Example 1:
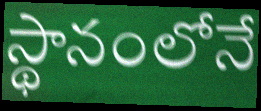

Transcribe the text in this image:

స్థానంలోనే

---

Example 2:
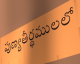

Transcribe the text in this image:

పుణ్యతీర్థములలో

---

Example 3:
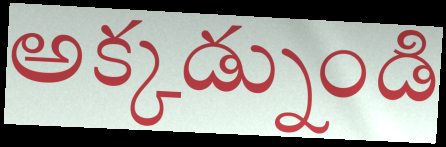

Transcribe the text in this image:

అక్కడ్నుండి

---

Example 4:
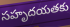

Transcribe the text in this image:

సహృదయతకు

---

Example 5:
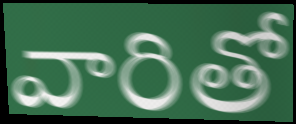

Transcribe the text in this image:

వారితో